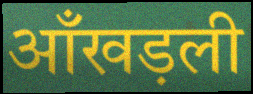
आँखड़ली